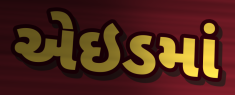
એઇડમાં